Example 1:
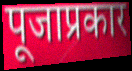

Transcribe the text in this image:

पूजाप्रकार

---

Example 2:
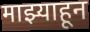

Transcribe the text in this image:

माझ्याहून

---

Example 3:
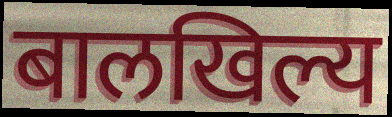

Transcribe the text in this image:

बालखिल्य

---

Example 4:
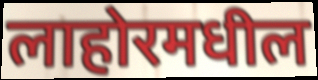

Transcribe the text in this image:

लाहोरमधील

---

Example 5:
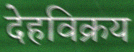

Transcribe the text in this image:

देहविक्रय